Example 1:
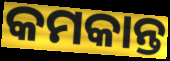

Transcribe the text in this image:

କମକାନ୍ତ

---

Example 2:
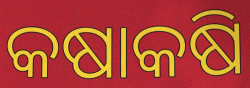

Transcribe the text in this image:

କଷାକଷି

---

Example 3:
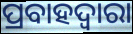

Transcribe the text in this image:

ପ୍ରବାହଦ୍ୱାରା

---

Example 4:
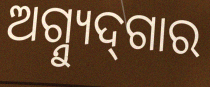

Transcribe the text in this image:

ଅଗ୍ନ୍ୟୁଦ୍‌ଗାର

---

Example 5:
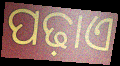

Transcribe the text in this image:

ପଢ଼ାଏ